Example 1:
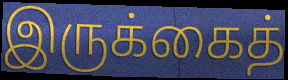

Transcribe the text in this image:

இருக்கைத்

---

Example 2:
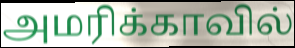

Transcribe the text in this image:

அமரிக்காவில்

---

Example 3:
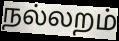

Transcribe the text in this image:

நல்லறம்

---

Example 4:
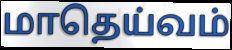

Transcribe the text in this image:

மாதெய்வம்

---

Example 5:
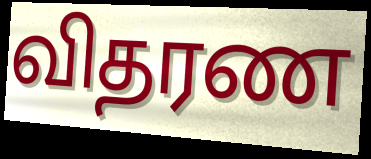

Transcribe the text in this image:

விதரண